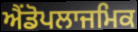
ਐਂਡੋਪਲਾਜਮਿਕ